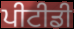
ਪੀਟੀਡੀ